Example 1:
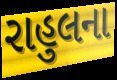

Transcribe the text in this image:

રાહુલના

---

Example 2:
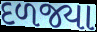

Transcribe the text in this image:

દળજ્યા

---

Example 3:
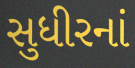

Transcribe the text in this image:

સુધીરનાં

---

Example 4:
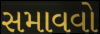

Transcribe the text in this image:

સમાવવો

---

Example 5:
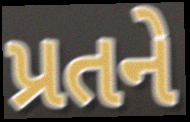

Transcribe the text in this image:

પ્રતને